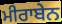
ਮੀਰਾਬੇਨ